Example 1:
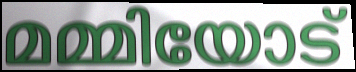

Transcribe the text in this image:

മമ്മിയോട്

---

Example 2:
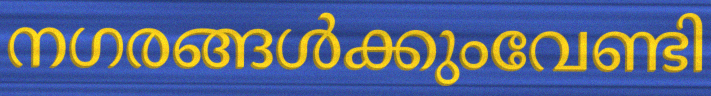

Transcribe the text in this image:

നഗരങ്ങൾക്കുംവേണ്ടി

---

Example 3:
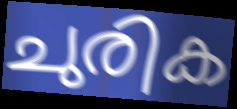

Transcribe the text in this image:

ചുരിക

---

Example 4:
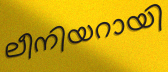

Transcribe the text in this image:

ലീനിയറായി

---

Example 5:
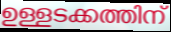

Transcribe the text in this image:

ഉള്ളടക്കത്തിന്